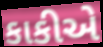
કાકીએ